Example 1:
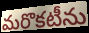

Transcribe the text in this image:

మరొకటీను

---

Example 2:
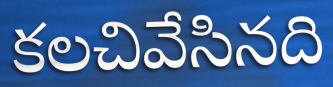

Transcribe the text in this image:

కలచివేసినది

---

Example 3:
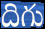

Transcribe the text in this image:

దిగు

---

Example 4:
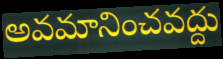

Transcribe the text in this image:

అవమానించవద్దు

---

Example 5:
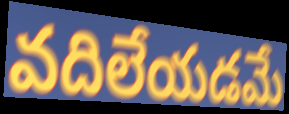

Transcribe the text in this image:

వదిలేయడమే